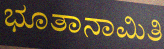
ಭೂತಾನಾಮಿತಿ